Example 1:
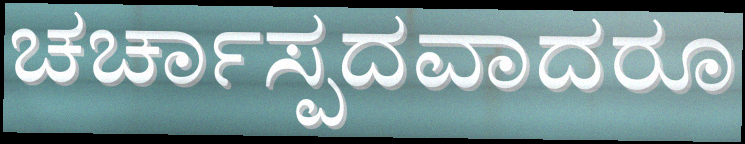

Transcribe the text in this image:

ಚರ್ಚಾಸ್ಪದವಾದರೂ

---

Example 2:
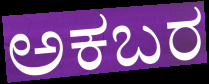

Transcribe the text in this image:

ಅಕಬರ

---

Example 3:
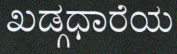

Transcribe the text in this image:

ಖಡ್ಗಧಾರೆಯ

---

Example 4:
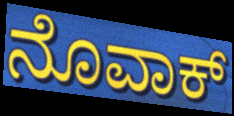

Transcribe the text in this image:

ನೊವಾಕ್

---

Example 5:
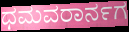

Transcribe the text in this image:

ಧಮವರಾರ್ನಗ